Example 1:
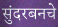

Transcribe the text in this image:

सुंदरबनचे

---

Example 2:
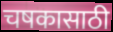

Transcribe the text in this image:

चषकासाठी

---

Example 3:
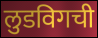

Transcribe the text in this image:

लुडविगची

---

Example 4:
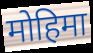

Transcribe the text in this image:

मोहिमा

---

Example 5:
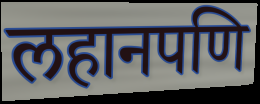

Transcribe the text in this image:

लहानपणि